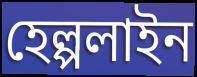
হেল্পলাইন